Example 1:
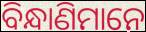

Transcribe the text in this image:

ବିନ୍ଧାଣିମାନେ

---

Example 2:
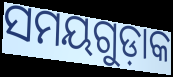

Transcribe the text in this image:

ସମୟଗୁଡ଼ାକ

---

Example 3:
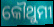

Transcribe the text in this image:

କୌଥୁମୀ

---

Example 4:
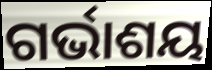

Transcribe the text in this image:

ଗର୍ଭାଶୟ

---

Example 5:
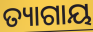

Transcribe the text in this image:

ତ୍ୟାଗାୟ